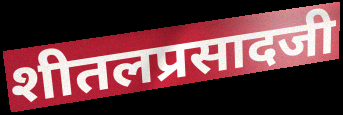
शीतलप्रसादजी